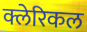
क्लेरिकल